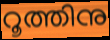
റൂത്തിനു